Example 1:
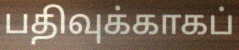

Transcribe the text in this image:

பதிவுக்காகப்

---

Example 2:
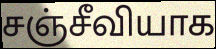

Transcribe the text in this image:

சஞ்சீவியாக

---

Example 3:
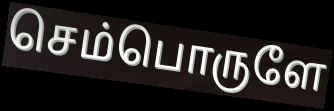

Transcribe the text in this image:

செம்பொருளே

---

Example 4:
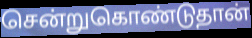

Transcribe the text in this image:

சென்றுகொண்டுதான்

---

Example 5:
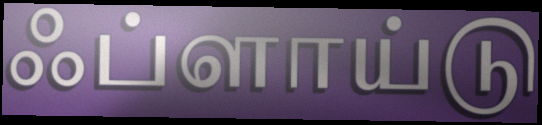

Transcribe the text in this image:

ஃப்ளாய்டு